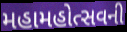
મહામહોત્સવની